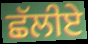
ਛੱਲੀਏ